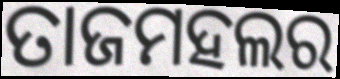
ତାଜମହଲର